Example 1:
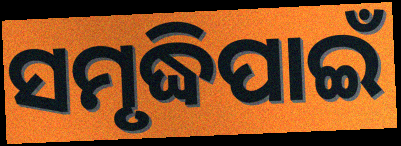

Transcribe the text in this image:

ସମୃଦ୍ଧିପାଇଁ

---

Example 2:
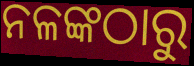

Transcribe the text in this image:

ନଳଙ୍କଠାରୁ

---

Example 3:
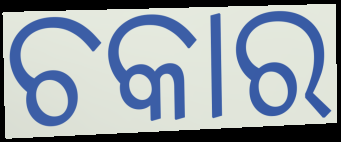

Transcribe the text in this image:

ଚକାର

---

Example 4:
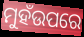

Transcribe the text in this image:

ମୁହଁଉପରେ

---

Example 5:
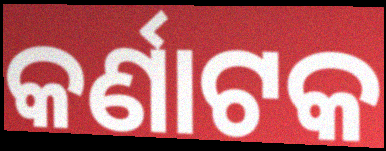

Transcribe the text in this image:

କର୍ଣାଟକ